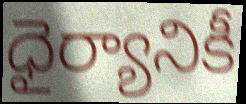
ధైర్యానికీ